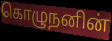
கொழுநனின்